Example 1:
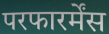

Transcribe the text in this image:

परफारर्मेंस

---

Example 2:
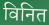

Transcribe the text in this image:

विनित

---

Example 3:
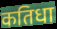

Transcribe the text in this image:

कतिधा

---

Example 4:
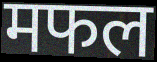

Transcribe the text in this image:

मफल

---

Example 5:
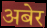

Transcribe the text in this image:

अबेर